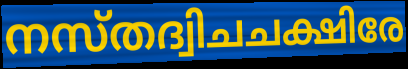
നസ്തദ്വിചചക്ഷിരേ